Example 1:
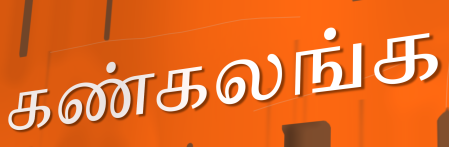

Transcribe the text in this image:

கண்கலங்க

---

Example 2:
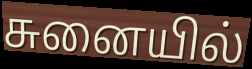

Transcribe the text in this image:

சுனையில்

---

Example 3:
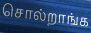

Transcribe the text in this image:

சொல்றாங்க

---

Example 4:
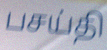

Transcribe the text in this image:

பசய்தி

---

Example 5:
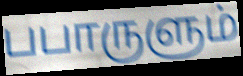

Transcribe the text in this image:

பபாருளும்